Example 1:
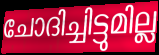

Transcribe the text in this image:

ചോദിച്ചിട്ടുമില്ല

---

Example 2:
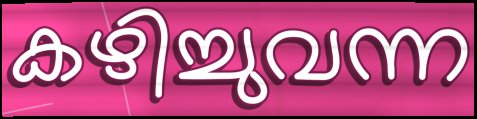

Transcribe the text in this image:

കഴിച്ചുവന്ന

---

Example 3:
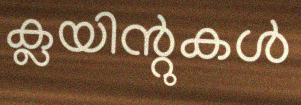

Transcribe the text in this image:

ക്ലയിന്റുകൾ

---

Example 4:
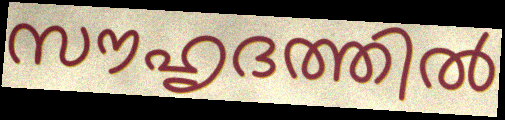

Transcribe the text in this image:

സൗഹൃദത്തിൽ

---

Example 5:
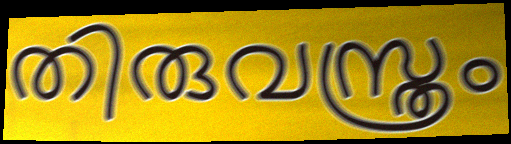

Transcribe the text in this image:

തിരുവസ്ത്രം